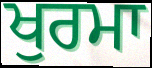
ਖੁਰਮਾ